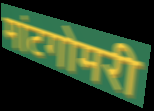
मांटगोमरी